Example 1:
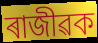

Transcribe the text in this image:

ৰাজীৱক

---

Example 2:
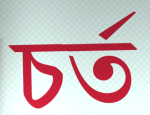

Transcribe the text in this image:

চৰ্ত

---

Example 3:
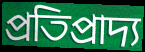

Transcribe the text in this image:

প্ৰতিপ্ৰাদ্য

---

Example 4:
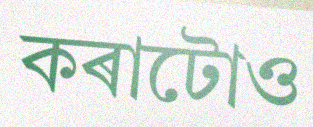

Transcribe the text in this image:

কৰাটোও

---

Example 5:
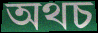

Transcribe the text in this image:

অথচ